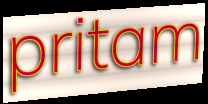
pritam